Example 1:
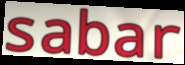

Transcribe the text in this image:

sabar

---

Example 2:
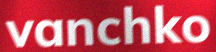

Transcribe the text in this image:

vanchko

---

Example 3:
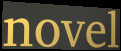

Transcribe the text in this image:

novel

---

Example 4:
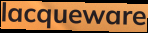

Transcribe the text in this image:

lacqueware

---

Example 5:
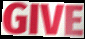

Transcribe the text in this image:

GIVE